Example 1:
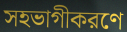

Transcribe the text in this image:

সহভাগীকরণে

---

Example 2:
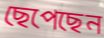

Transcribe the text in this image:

ছেপেছেন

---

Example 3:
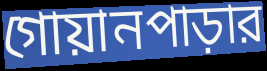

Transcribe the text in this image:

গোয়ানপাড়ার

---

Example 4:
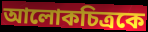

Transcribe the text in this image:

আলোকচিত্রকে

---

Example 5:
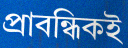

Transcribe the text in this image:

প্রাবন্ধিকই